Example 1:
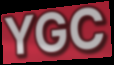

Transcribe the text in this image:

YGC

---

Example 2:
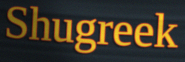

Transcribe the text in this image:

Shugreek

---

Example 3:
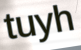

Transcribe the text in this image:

tuyh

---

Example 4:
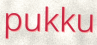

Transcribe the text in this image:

pukku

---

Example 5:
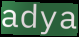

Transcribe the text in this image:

adya